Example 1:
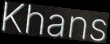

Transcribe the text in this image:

Khans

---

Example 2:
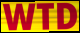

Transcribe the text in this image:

WTD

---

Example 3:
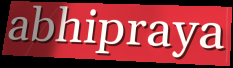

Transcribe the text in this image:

abhipraya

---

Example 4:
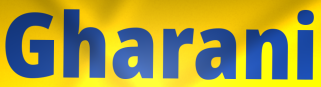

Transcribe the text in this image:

Gharani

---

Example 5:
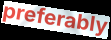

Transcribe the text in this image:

preferably